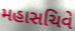
મહાસચિવે